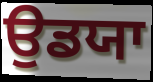
ਉਡਯਾ